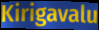
Kirigavalu